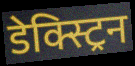
डेक्स्ट्रिन